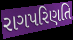
રાગપરિણતિ